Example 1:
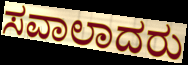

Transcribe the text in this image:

ಸವಾಲಾದರು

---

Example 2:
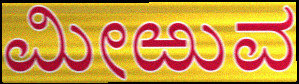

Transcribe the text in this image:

ಮೀಱುವ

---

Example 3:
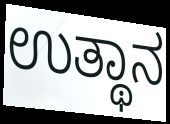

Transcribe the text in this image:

ಉತ್ಥಾನ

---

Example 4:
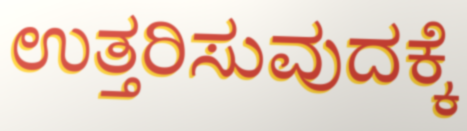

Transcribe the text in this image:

ಉತ್ತರಿಸುವುದಕ್ಕೆ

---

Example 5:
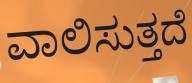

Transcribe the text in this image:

ವಾಲಿಸುತ್ತದೆ